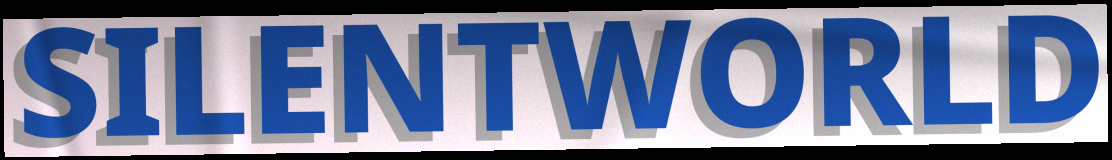
SILENTWORLD